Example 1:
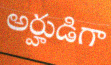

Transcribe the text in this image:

అర్హుడిగా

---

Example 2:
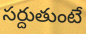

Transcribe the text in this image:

సర్దుతుంటే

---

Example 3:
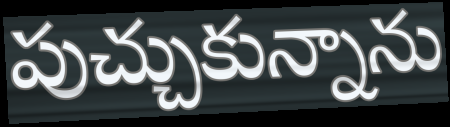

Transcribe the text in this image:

పుచ్చుకున్నాను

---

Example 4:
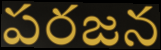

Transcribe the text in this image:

పరజన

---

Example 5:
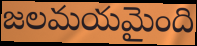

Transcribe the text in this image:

జలమయమైంది